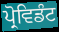
ਪ੍ਰੋਵਿਡੰਟ